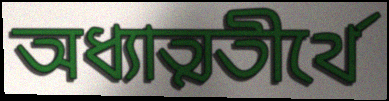
অধ্যাত্মতীর্থে